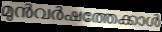
മുൻവർഷത്തേക്കാൾ